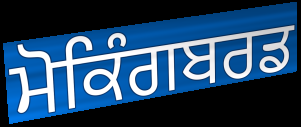
ਮੋਕਿੰਗਬਰਡ